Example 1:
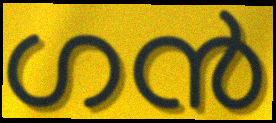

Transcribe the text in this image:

ഗൻ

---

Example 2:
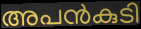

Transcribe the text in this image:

അപൻകുടി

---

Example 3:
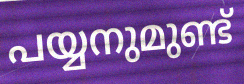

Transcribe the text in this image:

പയ്യനുമുണ്ട്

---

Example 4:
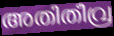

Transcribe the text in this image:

അതിതീവ്ര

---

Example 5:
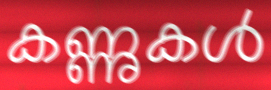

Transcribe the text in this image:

കണ്ണുകൾ